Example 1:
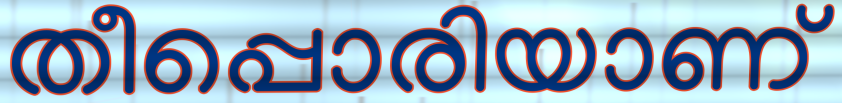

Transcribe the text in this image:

തീപ്പൊരിയാണ്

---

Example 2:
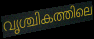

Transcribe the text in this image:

വൃശ്ചികത്തിലെ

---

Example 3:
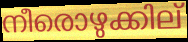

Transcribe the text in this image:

നീരൊഴുക്കില്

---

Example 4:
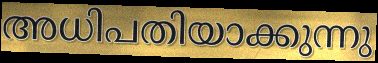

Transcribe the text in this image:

അധിപതിയാക്കുന്നു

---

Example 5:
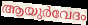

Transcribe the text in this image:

ആയുർവേദം